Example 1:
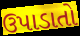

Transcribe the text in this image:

ઉપાડાતો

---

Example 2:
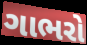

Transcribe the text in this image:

ગાભરો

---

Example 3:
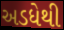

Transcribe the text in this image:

અડધેથી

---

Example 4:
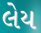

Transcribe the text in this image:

લેય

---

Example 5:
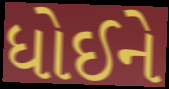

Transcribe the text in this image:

ધોઈને